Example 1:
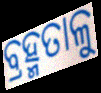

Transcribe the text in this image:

ବ୍ରହ୍ମତାଳୁ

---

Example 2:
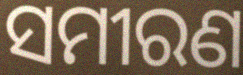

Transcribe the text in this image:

ସମୀରଣ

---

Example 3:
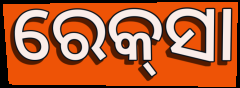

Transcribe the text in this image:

ରେକ୍‍ସା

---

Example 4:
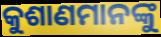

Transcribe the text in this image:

କୁଶାଣମାନଙ୍କୁ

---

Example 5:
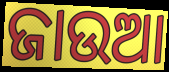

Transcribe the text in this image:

ଜାଉଆ